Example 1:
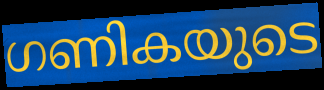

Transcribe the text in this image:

ഗണികയുടെ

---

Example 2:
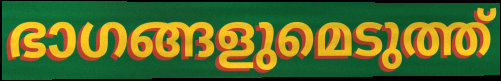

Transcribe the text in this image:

ഭാഗങ്ങളുമെടുത്ത്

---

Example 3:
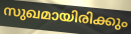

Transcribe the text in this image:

സുഖമായിരിക്കും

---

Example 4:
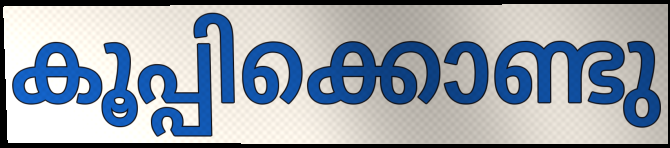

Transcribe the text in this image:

കൂപ്പിക്കൊണ്ടു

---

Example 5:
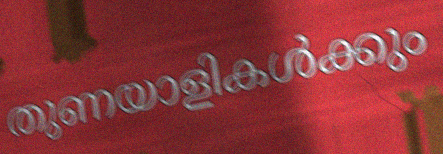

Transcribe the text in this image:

തുണയാളികൾക്കും